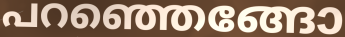
പറഞ്ഞെങ്ങോ